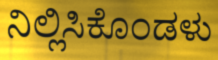
ನಿಲ್ಲಿಸಿಕೊಂಡಳು